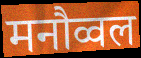
मनौव्वल